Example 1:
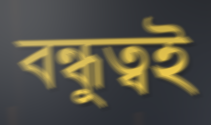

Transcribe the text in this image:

বন্ধুত্বই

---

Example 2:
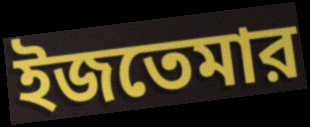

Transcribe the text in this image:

ইজতেমার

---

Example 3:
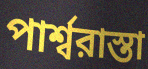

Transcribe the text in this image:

পার্শ্বরাস্তা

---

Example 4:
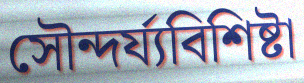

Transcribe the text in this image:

সৌন্দর্য্যবিশিষ্টা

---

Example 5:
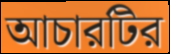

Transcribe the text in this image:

আচারটির